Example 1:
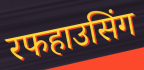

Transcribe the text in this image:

रफहाउसिंग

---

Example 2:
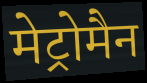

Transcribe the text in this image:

मेट्रोमैन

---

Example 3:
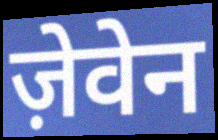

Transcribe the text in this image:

ज़ेवेन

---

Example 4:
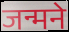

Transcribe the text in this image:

जन्मने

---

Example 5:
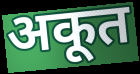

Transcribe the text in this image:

अकूत